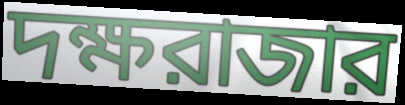
দক্ষরাজার